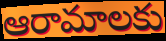
ఆరామాలకు